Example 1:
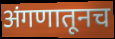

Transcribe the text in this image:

अंगणातूनच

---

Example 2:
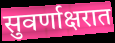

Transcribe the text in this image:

सुवर्णाक्षरात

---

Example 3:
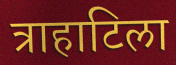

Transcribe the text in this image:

त्राहाटिला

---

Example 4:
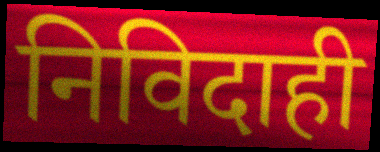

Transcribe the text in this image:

निविदाही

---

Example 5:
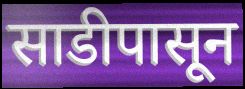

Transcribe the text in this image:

साडीपासून